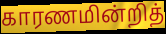
காரணமின்றித்